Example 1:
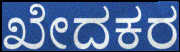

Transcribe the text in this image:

ಖೇದಕರ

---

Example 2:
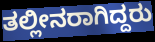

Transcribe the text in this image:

ತಲ್ಲೀನರಾಗಿದ್ದರು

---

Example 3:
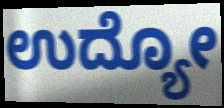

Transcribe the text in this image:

ಉದ್ಯೋ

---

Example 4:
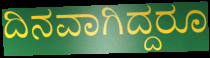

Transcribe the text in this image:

ದಿನವಾಗಿದ್ದರೂ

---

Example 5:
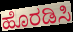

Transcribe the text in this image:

ಹೊರಡಿಸಿ